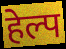
हेल्प